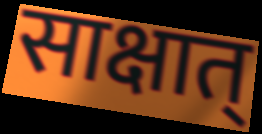
साक्षात्